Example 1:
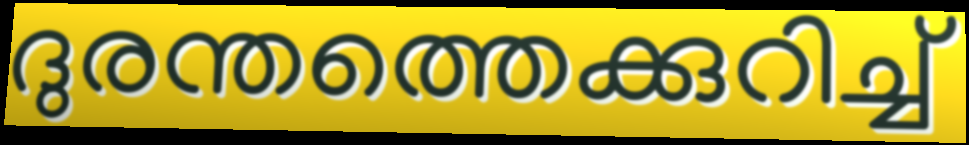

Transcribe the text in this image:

ദുരന്തത്തെക്കുറിച്ച്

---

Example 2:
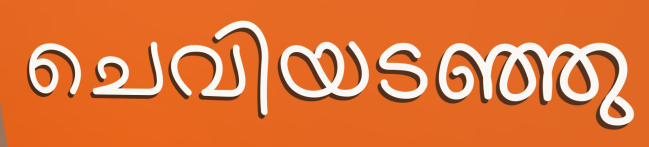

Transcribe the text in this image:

ചെവിയടഞ്ഞു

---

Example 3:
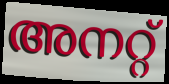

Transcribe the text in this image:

അനറ്റ്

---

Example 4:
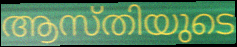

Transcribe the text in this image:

ആസ്തിയുടെ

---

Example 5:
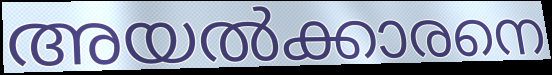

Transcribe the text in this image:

അയൽക്കാരനെ